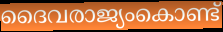
ദൈവരാജ്യംകൊണ്ട്